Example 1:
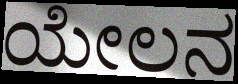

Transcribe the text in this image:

ಯೇಲನ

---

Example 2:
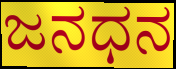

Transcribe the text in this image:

ಜನಧನ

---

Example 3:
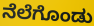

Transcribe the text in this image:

ನೆಲೆಗೊಂಡು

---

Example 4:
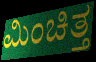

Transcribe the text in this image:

ಮಿಂಚಿತ್ತ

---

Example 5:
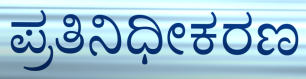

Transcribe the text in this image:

ಪ್ರತಿನಿಧೀಕರಣ